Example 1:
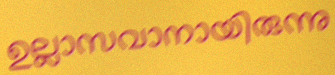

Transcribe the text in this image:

ഉല്ലാസവാനായിരുന്നു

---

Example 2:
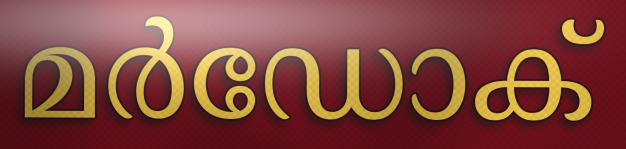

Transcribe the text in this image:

മർഡോക്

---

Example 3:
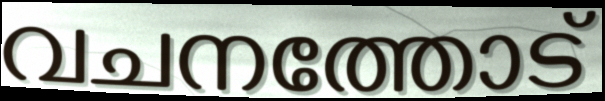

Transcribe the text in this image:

വചനത്തോട്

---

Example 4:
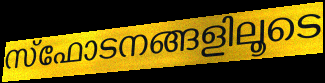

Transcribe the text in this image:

സ്ഫോടനങ്ങളിലൂടെ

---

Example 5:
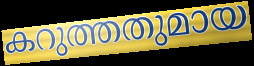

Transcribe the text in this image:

കറുത്തതുമായ